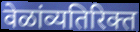
वेळांव्यतिरिक्त